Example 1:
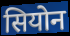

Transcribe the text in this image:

सियोन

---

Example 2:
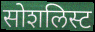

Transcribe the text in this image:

सोशलिस्ट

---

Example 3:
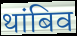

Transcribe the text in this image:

थांबिव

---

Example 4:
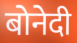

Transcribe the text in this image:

बोनेदी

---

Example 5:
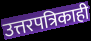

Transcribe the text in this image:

उत्तरपत्रिकाही